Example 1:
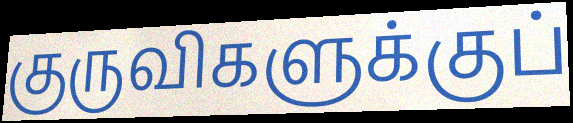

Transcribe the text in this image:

குருவிகளுக்குப்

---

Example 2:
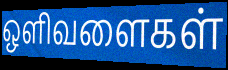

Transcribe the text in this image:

ஒளிவளைகள்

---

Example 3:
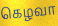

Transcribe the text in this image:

கெழவா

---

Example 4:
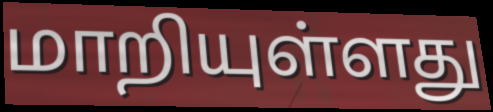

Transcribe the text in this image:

மாறியுள்ளது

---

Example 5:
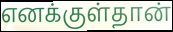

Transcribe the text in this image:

எனக்குள்தான்